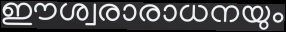
ഈശ്വരാരാധനയും